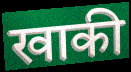
खाकी